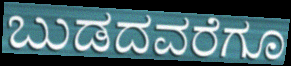
ಬುಡದವರೆಗೂ